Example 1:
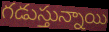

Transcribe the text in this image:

గడుస్తున్నాయి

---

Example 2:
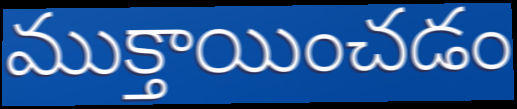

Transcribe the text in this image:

ముక్తాయించడం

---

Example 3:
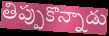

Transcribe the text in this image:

తిప్పుకొన్నాడు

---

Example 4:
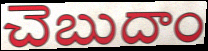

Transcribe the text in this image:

చెబుదాం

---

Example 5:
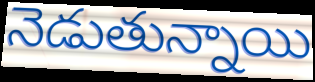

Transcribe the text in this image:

నెడుతున్నాయి